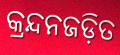
କ୍ରନ୍ଦନଜଡ଼ିତ